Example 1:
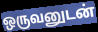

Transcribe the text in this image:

ஒருவனுடன்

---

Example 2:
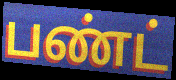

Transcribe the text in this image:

பண்ட்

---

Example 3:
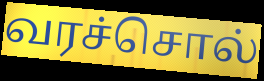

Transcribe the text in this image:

வரச்சொல்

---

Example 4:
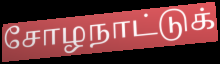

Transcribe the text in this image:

சோழநாட்டுக்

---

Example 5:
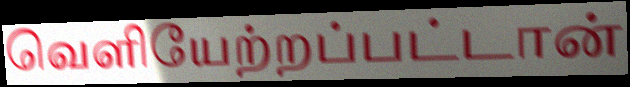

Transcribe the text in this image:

வெளியேற்றப்பட்டான்